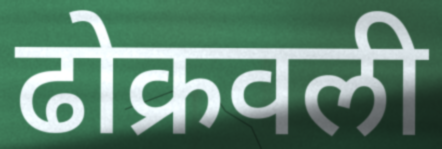
ढोक्रवली